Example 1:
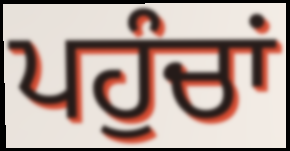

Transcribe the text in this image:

ਪਹੁੰਚਾਂ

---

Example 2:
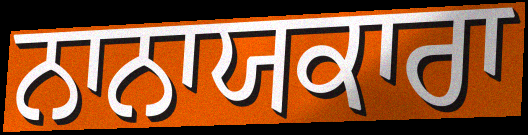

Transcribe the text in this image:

ਨਾਨਾਯਕਾਰਾ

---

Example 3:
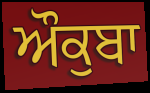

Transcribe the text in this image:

ਔਕੁਬਾ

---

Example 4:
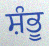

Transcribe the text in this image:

ਸ਼ੰਭੂ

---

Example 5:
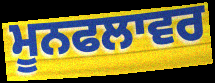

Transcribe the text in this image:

ਮੂਨਫਲਾਵਰ